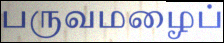
பருவமழைப்